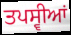
ਤਪਸ੍ਵੀਆਂ